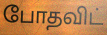
போதவிட்